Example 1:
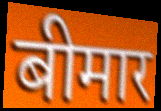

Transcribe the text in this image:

बीमार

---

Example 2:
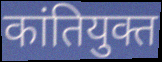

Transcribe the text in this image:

कांतियुक्त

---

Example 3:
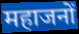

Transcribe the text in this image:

महाजनों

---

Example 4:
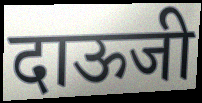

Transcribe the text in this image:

दाऊजी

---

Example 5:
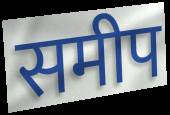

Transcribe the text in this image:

समीप